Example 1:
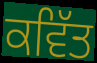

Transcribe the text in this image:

ਕਵਿੱਤ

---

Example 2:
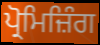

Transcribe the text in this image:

ਪ੍ਰੋਮਿਜ਼ਿੰਗ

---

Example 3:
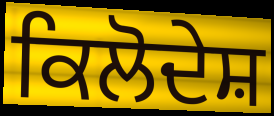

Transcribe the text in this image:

ਕਿਲੋਦੇਸ਼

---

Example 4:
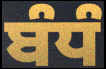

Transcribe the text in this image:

ਬੰਧੰ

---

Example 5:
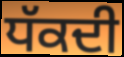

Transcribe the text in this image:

ਧੱਕਦੀ